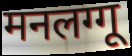
मनलग्गू